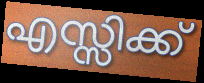
എസ്സിക്ക്